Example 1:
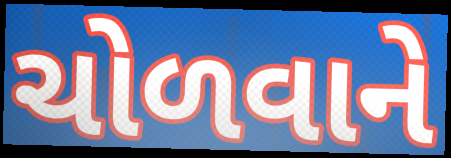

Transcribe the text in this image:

ચોળવાને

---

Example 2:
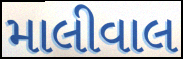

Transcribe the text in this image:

માલીવાલ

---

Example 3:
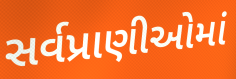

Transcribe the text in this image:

સર્વપ્રાણીઓમાં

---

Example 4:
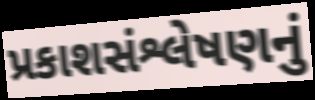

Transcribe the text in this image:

પ્રકાશસંશ્લેષણનું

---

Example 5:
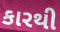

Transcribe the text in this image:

કારથી